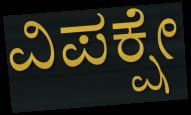
ವಿಪಕ್ಷೇ